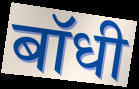
बॉधी